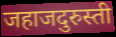
जहाजदुरुस्ती